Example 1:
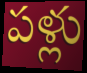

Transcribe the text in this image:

పళ్లు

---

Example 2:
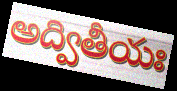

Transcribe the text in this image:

అద్వితీయః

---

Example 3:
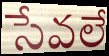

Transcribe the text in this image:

సేవలే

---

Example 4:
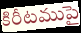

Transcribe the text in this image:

కిరీటముపై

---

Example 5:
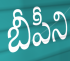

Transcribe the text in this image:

బీపీని